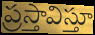
ప్రస్తావిస్తూ